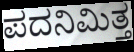
ಪದನಿಮಿತ್ತ